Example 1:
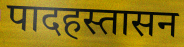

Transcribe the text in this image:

पादहस्तासन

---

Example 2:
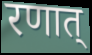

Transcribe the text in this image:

रणात्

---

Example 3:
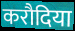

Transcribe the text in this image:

करौदिया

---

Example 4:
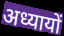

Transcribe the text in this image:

अध्यायों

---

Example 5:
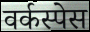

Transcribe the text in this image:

वर्कस्पेस